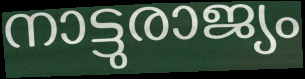
നാട്ടുരാജ്യം